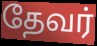
தேவர்